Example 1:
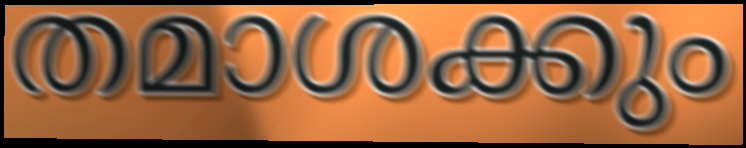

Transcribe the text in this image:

തമാശക്കും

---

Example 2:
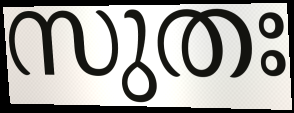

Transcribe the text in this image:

സുതഃ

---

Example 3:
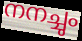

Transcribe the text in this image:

നനച്ചും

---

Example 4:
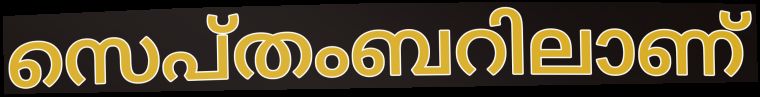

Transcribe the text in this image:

സെപ്തംബറിലാണ്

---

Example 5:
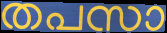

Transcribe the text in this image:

തപസാ